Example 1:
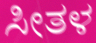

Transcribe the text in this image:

ಸೀತಳ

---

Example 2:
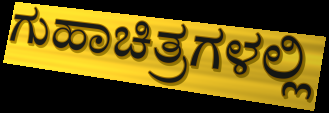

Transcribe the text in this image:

ಗುಹಾಚಿತ್ರಗಳಲ್ಲಿ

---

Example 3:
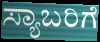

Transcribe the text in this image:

ಸ್ಯಾಬರಿಗೆ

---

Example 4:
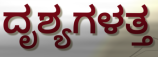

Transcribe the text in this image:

ದೃಶ್ಯಗಳತ್ತ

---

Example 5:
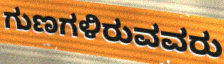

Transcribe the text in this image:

ಗುಣಗಳಿರುವವರು